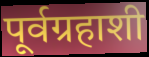
पूर्वग्रहाशी